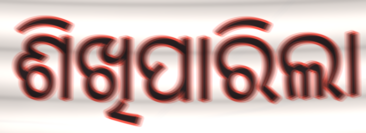
ଶିଖିପାରିଲା